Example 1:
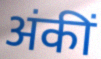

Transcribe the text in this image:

अंकीं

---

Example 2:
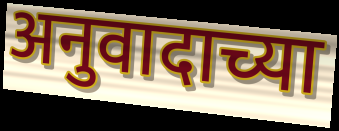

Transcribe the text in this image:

अनुवादाच्या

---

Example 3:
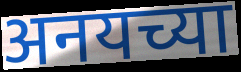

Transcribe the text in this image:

अनयच्या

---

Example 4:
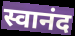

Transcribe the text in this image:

स्वानंद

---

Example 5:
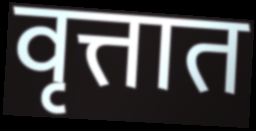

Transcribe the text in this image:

वृत्तात